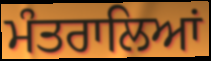
ਮੰਤਰਾਲਿਆਂ